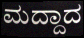
ಮದ್ದಾದ